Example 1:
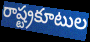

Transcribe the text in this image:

రాష్ట్రకూటుల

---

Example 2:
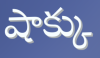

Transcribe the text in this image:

షాక్కు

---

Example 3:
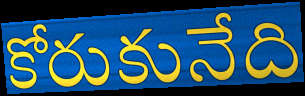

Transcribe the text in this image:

కోరుకునేది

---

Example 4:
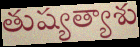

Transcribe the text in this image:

తుష్యత్యాశు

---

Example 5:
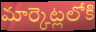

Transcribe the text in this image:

మార్కెట్లలోకి